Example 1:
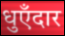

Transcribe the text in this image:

धुएँदार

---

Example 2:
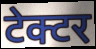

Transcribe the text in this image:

टेक्टर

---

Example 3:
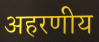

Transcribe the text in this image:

अहरणीय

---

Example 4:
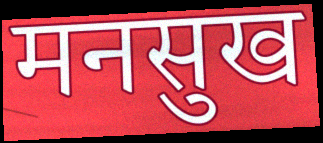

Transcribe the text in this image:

मनसुख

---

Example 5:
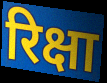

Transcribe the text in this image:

रिक्षा